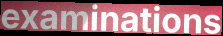
examinations